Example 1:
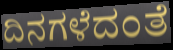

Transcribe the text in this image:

ದಿನಗಳೆದಂತೆ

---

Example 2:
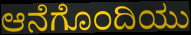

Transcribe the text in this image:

ಆನೆಗೊಂದಿಯು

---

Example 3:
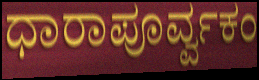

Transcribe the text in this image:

ಧಾರಾಪೂರ್ವ್ವಕಂ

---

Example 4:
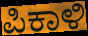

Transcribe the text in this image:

ಪಿಕಾಳಿ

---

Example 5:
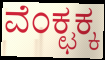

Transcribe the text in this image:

ವೆಂಕ್ಟಕ್ಕ